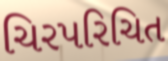
ચિરપરિચિત